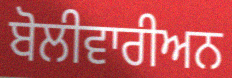
ਬੋਲੀਵਾਰੀਅਨ